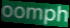
oomph